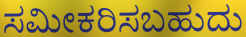
ಸಮೀಕರಿಸಬಹುದು